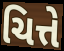
ચિત્તે